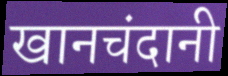
खानचंदानी